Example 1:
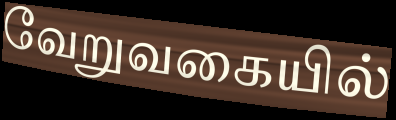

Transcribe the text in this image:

வேறுவகையில்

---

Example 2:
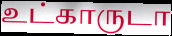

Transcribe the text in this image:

உட்காருடா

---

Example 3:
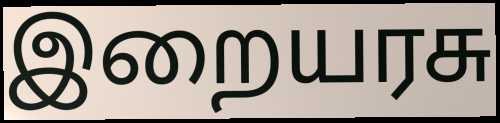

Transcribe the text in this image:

இறையரசு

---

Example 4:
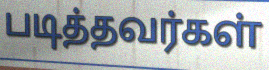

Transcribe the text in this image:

படித்தவர்கள்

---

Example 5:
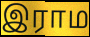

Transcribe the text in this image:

இராம